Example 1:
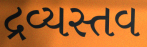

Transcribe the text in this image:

દ્રવ્યસ્તવ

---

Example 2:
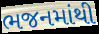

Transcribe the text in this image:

ભજનમાંથી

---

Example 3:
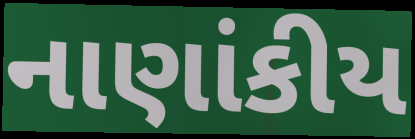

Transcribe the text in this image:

નાણાંકીય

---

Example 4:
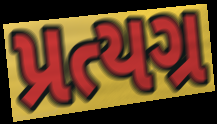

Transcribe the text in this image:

પ્રત્યગ્ર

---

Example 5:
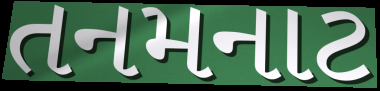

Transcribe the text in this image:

તનમનાટ